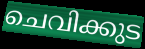
ചെവിക്കുട